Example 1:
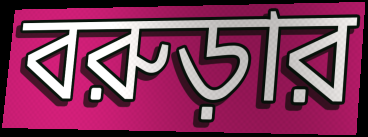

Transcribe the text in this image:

বরুড়ার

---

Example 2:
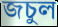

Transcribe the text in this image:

জচুল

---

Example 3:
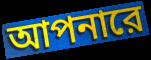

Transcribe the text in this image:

আপনারে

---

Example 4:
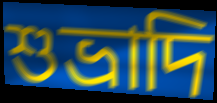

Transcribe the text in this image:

শুভ্রাদি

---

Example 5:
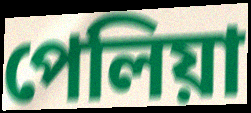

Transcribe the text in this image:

পেলিয়া